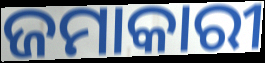
ଜମାକାରୀ